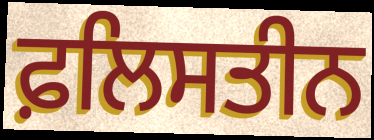
ਫ਼ਲਿਸਤੀਨ